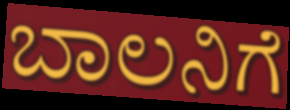
ಬಾಲನಿಗೆ